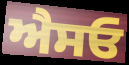
ਐਸਓ